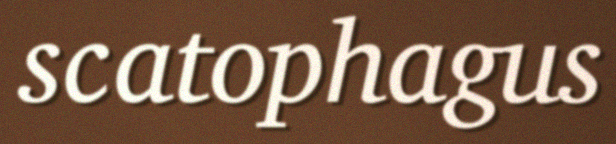
scatophagus